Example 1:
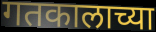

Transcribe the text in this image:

गतकालाच्या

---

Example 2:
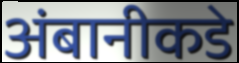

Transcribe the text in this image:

अंबानीकडे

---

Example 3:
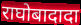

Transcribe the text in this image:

राघोबादादा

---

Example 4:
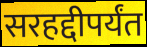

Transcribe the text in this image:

सरहद्दीपर्यंत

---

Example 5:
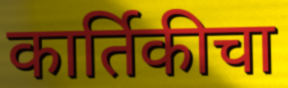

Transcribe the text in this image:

कार्तिकीचा